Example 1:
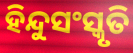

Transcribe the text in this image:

ହିନ୍ଦୁସଂସ୍କୃତି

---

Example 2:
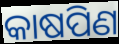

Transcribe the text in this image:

କାଷପିଣ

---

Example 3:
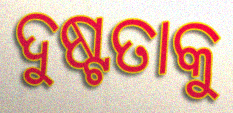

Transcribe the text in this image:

ଦୁଷ୍ଟତାକୁ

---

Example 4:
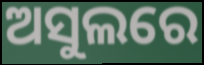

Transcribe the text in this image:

ଅସୁଲରେ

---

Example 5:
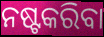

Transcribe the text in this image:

ନଷ୍ଟକରିବା